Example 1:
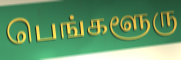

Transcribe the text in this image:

பெங்களூரு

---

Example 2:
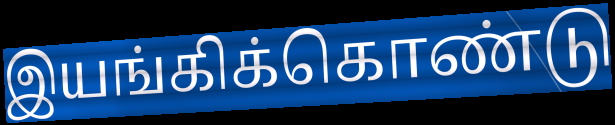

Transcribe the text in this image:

இயங்கிக்கொண்டு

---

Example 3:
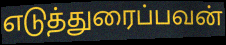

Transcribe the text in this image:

எடுத்துரைப்பவன்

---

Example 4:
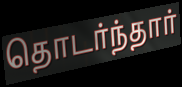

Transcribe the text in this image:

தொடர்ந்தார்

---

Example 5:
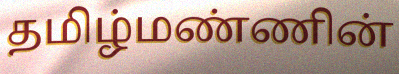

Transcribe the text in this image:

தமிழ்மண்ணின்